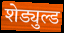
शेड्युल्ड